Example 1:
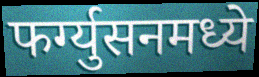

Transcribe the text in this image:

फर्ग्युसनमध्ये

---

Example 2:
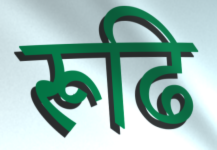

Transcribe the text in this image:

रूढि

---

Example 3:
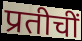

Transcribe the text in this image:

प्रतीचीं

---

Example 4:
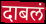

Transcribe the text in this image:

दाबलं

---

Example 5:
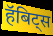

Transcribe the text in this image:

हॅबिट्स